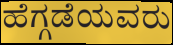
ಹೆಗ್ಗಡೆಯವರು